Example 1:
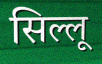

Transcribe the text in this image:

सिल्लू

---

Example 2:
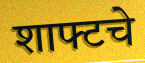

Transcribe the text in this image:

शाफ्टचे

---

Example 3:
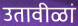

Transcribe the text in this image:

उतावीळां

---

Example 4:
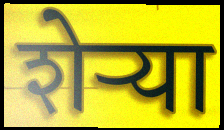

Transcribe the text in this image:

शेऱ्या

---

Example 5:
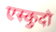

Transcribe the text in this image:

एस्कुदो